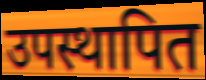
उपस्थापित